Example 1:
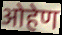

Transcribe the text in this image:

ओहेण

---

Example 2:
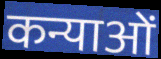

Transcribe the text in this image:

कन्‍याओं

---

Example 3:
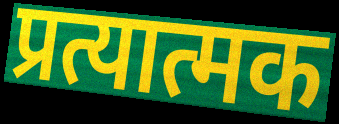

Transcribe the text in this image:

प्रत्यात्मक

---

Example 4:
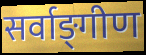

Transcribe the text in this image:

सर्वाङ्गीण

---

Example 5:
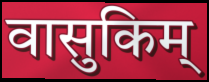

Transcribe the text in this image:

वासुकिम्